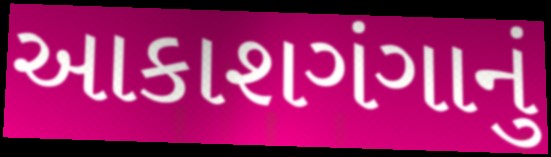
આકાશગંગાનું